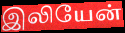
இலியேன்